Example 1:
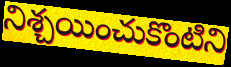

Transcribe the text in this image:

నిశ్చయించుకొంటిని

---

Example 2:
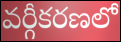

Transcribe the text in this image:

వర్గీకరణలో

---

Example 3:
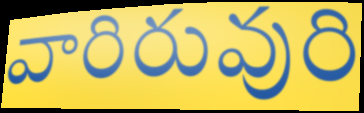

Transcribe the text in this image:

వారిరువురి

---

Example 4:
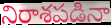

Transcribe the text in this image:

నిరాశపడినా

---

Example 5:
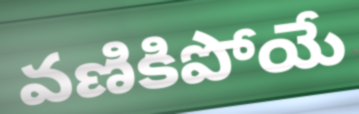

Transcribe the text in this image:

వణికిపోయే